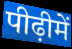
पीढ़ीमें